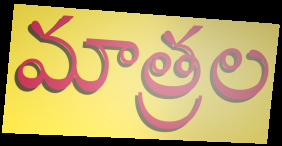
మాత్రల